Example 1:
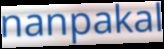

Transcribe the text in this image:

nanpakal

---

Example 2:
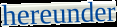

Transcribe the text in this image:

hereunder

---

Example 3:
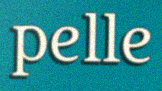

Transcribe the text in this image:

pelle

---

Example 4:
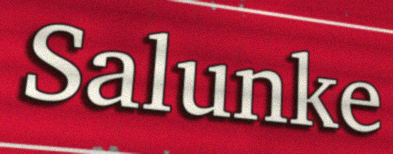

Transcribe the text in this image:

Salunke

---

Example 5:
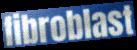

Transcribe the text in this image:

fibroblast